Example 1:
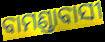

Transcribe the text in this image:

ବାମଣ୍ଡାବାସୀ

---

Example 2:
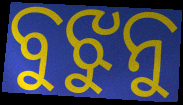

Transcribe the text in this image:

ବୁଝୁନୁ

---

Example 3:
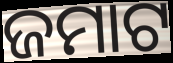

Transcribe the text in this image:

ଜମାଟ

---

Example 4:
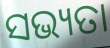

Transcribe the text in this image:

ସଭ୍ଯତା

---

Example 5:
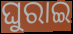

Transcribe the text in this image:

ଘୁରାଇ